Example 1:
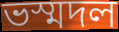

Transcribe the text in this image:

ভস্মদল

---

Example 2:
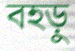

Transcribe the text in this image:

বহড়ু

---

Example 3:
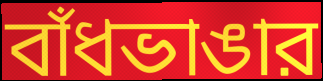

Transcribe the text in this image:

বাঁধভাঙার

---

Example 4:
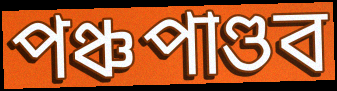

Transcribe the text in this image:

পঞ্চপাণ্ডব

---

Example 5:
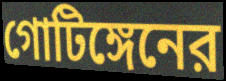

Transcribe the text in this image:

গোটিঙ্গেনের